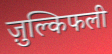
ज़ुल्किफली